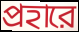
প্রহারে